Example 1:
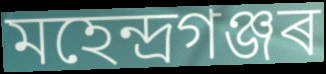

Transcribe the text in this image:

মহেন্দ্ৰগঞ্জৰ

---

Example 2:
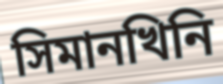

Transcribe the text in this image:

সিমানখিনি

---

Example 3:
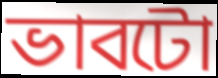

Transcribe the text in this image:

ভাবটো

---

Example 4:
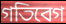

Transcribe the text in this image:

গতিবেগ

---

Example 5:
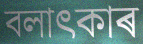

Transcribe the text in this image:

বলাৎকাৰ